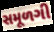
સમૂળગી